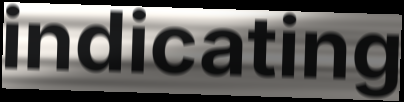
indicating